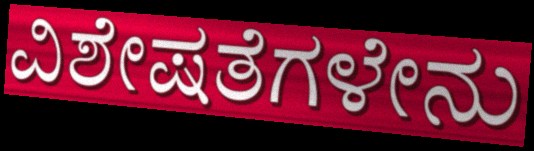
ವಿಶೇಷತೆಗಳೇನು